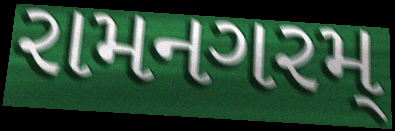
રામનગરમ્